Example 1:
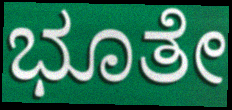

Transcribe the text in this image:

ಭೂತೇ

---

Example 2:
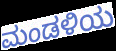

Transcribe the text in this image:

ಮಂಡಳಿಯ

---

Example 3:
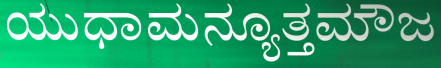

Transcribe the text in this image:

ಯುಧಾಮನ್ಯೂತ್ತಮೌಜ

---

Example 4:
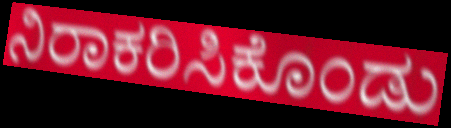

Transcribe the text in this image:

ನಿರಾಕರಿಸಿಕೊಂಡು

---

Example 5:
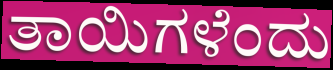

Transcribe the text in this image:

ತಾಯಿಗಳೆಂದು